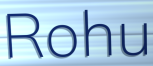
Rohu